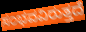
ಸಂಭವವಿರುತ್ತದೆ